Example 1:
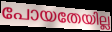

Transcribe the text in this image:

പോയതേയില്ല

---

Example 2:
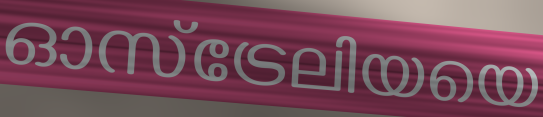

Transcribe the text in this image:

ഓസ്ട്രേലിയയെ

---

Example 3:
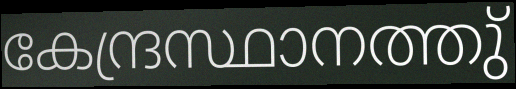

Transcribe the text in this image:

കേന്ദ്രസ്ഥാനത്തു്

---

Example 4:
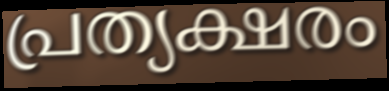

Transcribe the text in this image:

പ്രത്യക്ഷരം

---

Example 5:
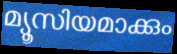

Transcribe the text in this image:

മ്യൂസിയമാക്കും